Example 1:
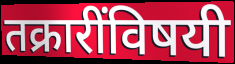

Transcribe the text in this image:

तक्रारींविषयी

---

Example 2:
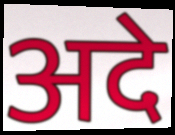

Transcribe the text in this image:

अदे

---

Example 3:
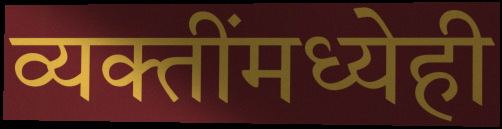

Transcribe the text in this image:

व्यक्तींमध्येही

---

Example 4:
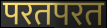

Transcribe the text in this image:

परतपरत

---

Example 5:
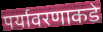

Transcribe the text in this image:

पर्यावरणाकडे